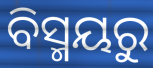
ବିସ୍ମୟରୁ